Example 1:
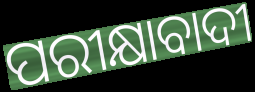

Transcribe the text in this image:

ପରୀକ୍ଷାବାଦୀ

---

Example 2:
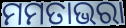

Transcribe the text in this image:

ମମତାଭରା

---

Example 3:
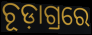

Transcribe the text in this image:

ଚୂଡ଼ାଗ୍ରରେ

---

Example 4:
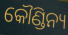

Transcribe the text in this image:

କୌଣ୍ଡିନ୍ୟ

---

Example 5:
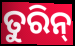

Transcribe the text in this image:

ତୁରିନ୍